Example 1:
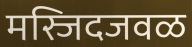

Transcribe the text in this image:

मस्जिदजवळ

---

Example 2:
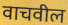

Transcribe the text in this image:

वाचवील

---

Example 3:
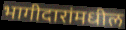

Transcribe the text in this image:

भागीदारांमधील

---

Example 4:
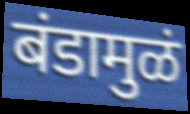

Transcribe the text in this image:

बंडामुळं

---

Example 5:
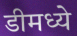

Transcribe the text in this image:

डीमध्ये